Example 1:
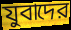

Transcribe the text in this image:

যুবাদের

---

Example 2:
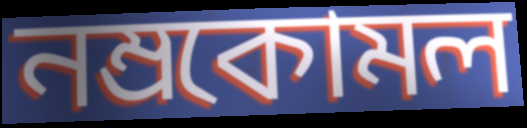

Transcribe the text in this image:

নম্রকোমল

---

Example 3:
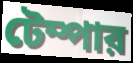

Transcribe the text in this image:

টেম্পার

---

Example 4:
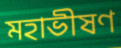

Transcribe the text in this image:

মহাভীষণ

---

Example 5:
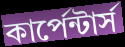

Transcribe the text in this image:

কার্পেন্টার্স